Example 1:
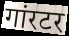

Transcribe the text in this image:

गांरटर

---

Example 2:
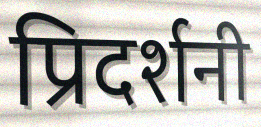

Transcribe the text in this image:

प्रिदर्शनी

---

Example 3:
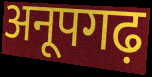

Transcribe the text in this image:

अनूपगढ़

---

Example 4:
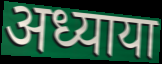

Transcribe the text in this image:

अध्याया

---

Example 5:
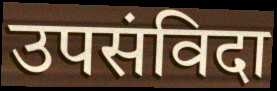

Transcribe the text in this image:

उपसंविदा